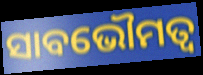
ସାବଭୌମତ୍ୱ